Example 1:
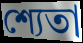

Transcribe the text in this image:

শ্যেতা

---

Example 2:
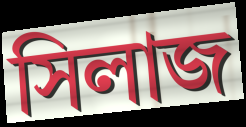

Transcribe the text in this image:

সিলাজ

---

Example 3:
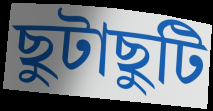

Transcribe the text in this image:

ছুটাছুটি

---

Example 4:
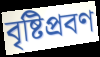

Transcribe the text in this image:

বৃষ্টিপ্রবণ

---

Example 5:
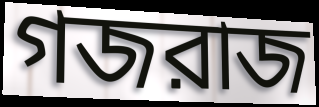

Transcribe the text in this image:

গজরাজ